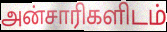
அன்சாரிகளிடம்